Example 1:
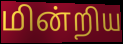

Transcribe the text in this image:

மின்றிய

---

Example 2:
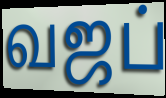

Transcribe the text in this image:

வஜப்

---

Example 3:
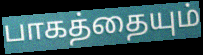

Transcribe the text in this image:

பாகத்தையும்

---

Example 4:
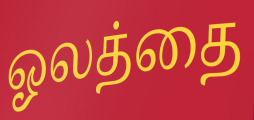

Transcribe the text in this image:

ஓலத்தை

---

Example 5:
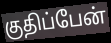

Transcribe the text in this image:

குதிப்பேன்